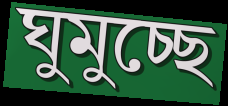
ঘুমুচ্ছে